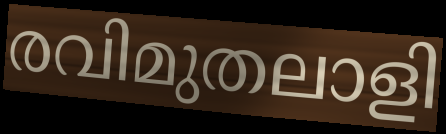
രവിമുതലാളി